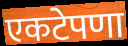
एकटेपणा